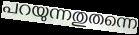
പറയുന്നതുതന്നെ